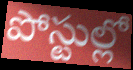
పోస్టుల్లో